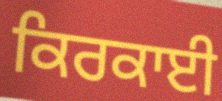
ਕਿਰਕਾਈ